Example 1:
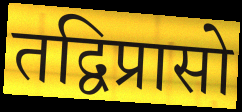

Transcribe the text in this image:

तद्विप्रासो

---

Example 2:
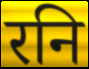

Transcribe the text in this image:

रनि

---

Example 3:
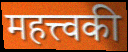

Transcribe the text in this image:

महत्त्वकी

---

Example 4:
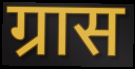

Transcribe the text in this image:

ग्रास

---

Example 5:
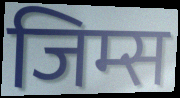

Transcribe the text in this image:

जिम्स